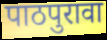
पाठपुरावा